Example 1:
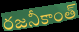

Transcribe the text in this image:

రజనీకాంత్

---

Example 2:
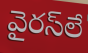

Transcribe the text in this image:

వైరస్‌లే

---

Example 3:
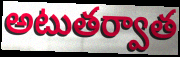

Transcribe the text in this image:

అటుతర్వాత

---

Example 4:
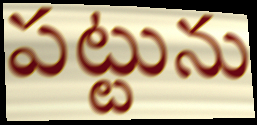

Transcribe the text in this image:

పట్టును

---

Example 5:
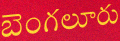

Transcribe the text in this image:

బెంగలూరు